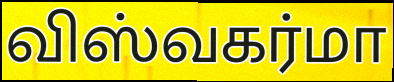
விஸ்வகர்மா